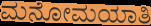
ಮನೋಮಯಾತಿ